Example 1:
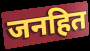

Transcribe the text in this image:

जनहित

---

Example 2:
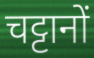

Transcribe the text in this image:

चट्टानों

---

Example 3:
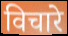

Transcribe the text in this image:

विचारे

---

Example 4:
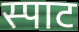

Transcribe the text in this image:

स्पाट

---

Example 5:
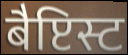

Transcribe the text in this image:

बैप्टिस्ट